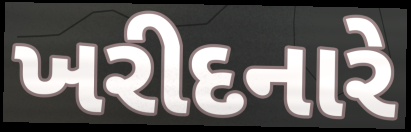
ખરીદનારે